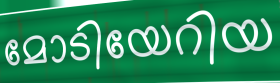
മോടിയേറിയ